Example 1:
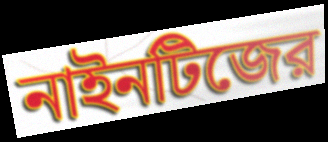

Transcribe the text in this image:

নাইনটিজের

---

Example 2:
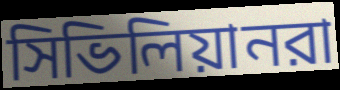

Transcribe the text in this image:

সিভিলিয়ানরা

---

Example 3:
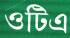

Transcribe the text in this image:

ওটিএ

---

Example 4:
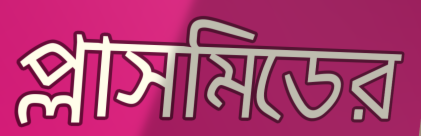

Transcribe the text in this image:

প্লাসমিডের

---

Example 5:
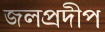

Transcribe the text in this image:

জলপ্রদীপ